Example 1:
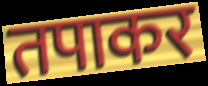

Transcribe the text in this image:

तपाकर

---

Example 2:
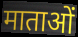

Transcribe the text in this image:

माताओं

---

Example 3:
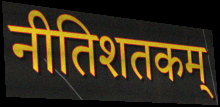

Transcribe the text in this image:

नीतिशतकम्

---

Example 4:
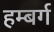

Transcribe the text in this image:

हम्बर्ग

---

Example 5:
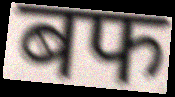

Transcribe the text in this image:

बफ